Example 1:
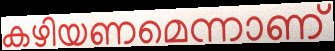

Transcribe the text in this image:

കഴിയണമെന്നാണ്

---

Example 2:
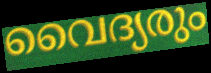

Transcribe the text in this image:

വൈദ്യരും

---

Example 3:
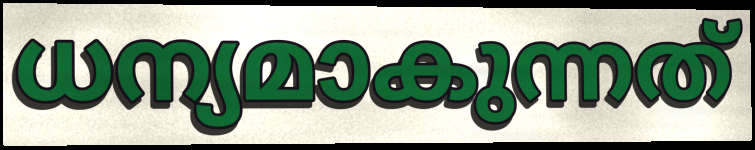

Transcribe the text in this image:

ധന്യമാകുന്നത്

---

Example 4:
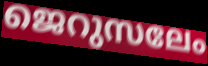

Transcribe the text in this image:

ജെറുസലേം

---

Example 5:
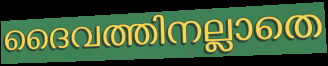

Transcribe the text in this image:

ദൈവത്തിനല്ലാതെ